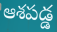
ఆశపడ్డ